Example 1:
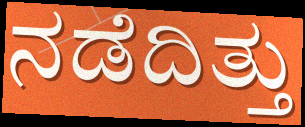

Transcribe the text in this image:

ನಡೆದಿತ್ತು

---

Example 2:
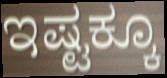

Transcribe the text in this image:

ಇಷ್ಟಕ್ಕೂ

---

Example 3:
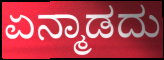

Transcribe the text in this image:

ಏನ್ಮಾಡದು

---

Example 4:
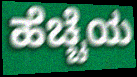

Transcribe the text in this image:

ಹೆಚ್ಚೆಯ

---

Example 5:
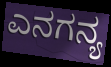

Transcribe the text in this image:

ಎನಗನ್ಯ